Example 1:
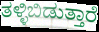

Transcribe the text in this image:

ತಳ್ಳಿಬಿಡುತ್ತಾರೆ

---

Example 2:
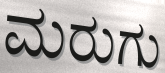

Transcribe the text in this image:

ಮರುಗು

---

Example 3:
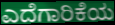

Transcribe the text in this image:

ಎದೆಗಾರಿಕೆಯ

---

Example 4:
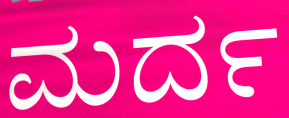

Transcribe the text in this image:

ಮರ್ದ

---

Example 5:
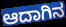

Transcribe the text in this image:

ಆದಾಗಿನ